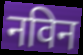
नविन